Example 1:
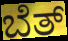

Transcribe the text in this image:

ಬೆತ್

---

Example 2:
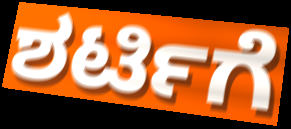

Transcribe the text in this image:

ಶರ್ಟಿಗೆ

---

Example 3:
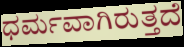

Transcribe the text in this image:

ಧರ್ಮವಾಗಿರುತ್ತದೆ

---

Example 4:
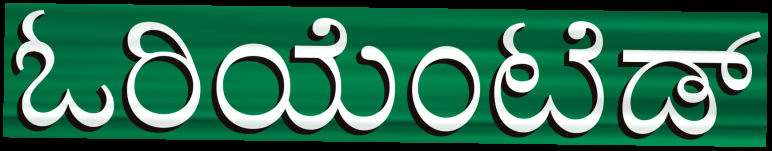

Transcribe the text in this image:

ಓರಿಯೆಂಟೆಡ್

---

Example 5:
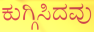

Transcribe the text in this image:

ಕುಗ್ಗಿಸಿದವು